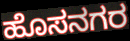
ಹೊಸನಗರ